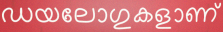
ഡയലോഗുകളാണ്